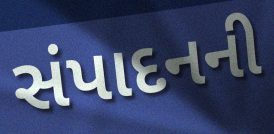
સંપાદનની